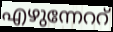
എഴുന്നേററ്